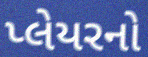
પ્લેયરનો